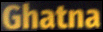
Ghatna